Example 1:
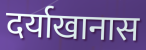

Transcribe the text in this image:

दर्याखानास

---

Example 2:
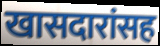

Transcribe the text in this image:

खासदारांसह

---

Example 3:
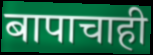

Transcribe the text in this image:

बापाचाही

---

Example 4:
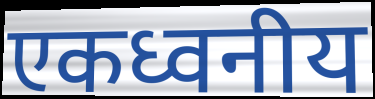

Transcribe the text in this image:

एकध्वनीय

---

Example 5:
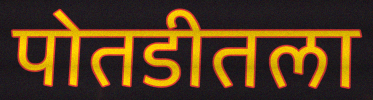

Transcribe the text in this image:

पोतडीतला